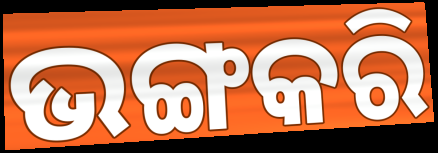
ଭଙ୍ଗକରି